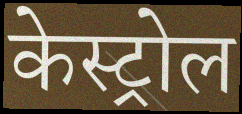
केस्ट्रोल